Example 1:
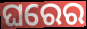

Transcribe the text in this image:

ଘରେର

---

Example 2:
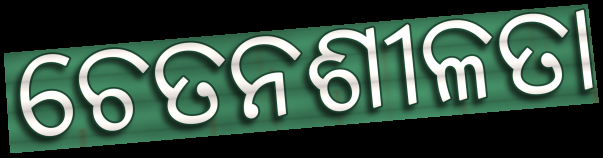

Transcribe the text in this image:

ଚେତନଶୀଳତା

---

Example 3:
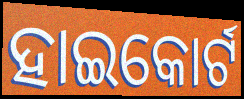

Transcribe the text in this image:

ହାଇକୋର୍ଟ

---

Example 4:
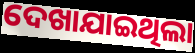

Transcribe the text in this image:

ଦେଖାଯାଇଥିଲା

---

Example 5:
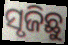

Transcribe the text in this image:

ସୃଜିଛୁ